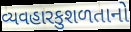
વ્યવહારકુશળતાનો